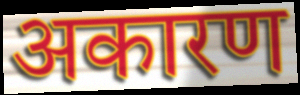
अकारण